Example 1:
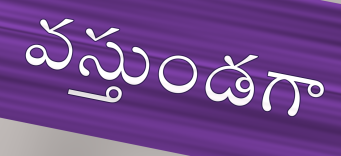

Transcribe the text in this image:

వస్తుండగా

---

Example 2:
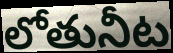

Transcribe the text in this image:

లోతునీట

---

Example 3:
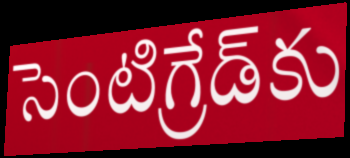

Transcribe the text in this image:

సెంటిగ్రేడ్‌కు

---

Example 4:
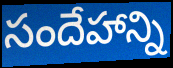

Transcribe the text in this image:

సందేహాన్ని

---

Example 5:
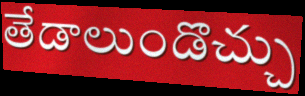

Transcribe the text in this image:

తేడాలుండొచ్చు